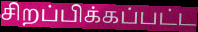
சிறப்பிக்கப்பட்ட